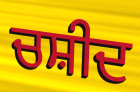
ਚਸ਼ੀਦ